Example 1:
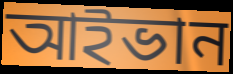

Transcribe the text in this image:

আইভান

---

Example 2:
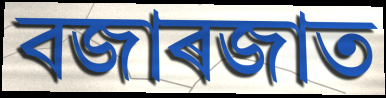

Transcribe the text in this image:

বজাৰজাত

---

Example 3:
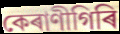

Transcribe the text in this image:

কেৰাণীগিৰি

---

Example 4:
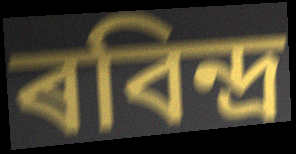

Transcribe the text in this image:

ৰবিন্দ্ৰ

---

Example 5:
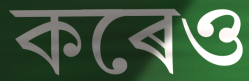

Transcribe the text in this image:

কৰেও